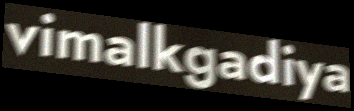
vimalkgadiya